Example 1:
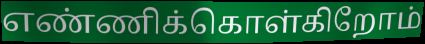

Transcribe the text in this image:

எண்ணிக்கொள்கிறோம்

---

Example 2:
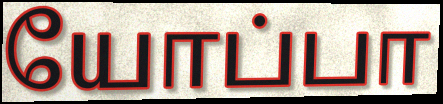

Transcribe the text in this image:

யோப்பா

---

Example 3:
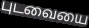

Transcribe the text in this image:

புடவையை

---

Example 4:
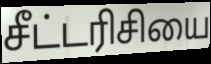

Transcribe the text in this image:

சீட்டரிசியை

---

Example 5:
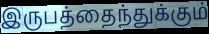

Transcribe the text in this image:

இருபத்தைந்துக்கும்